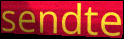
sendte